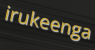
irukeenga